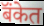
बॅंकेत